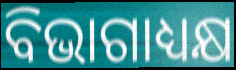
ବିଭାଗାଧ୍ୟକ୍ଷ